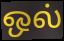
ஒல்